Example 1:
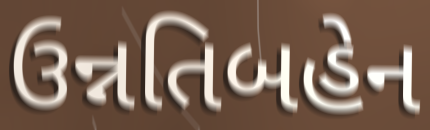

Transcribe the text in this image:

ઉન્નતિબહેન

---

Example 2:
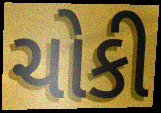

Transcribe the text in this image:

ચોકી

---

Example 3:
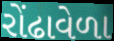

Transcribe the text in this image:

રોંઢાવેળા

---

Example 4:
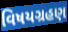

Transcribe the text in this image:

વિષયગ્રહણ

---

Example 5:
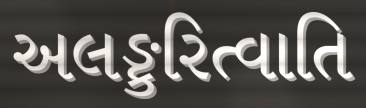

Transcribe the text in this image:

અલઙ્કરિત્વાતિ